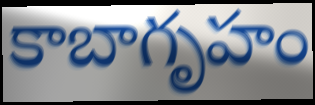
కాబాగృహం